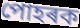
পোহৰক